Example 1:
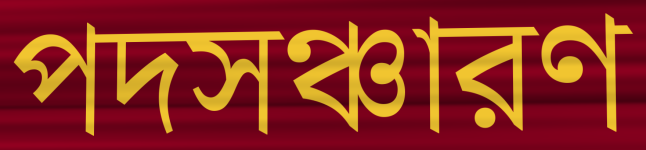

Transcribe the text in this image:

পদসঞ্চারণ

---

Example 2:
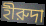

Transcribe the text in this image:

হীরুদা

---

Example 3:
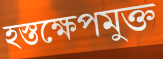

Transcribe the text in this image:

হস্তক্ষেপমুক্ত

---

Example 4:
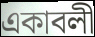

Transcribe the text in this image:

একাবলী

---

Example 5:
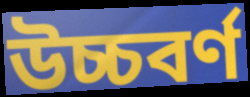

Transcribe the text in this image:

উচ্চবর্ণ